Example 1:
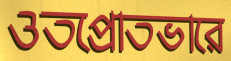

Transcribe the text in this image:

ওতপ্ৰোতভাৱে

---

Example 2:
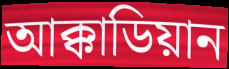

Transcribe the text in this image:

আক্কাডিয়ান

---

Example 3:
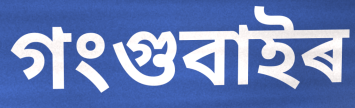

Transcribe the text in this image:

গংগুবাইৰ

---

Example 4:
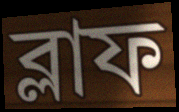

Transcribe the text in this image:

ব্লাফ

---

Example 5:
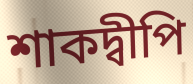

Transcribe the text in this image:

শাকদ্বীপি